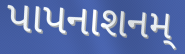
પાપનાશનમ્